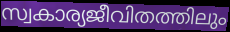
സ്വകാര്യജീവിതത്തിലും